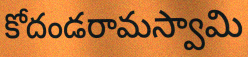
కోదండరామస్వామి